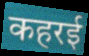
कहरई